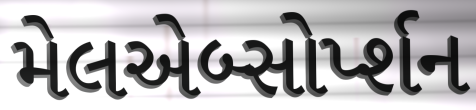
મેલએબ્સોર્પ્શન